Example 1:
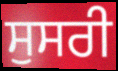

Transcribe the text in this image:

ਸੁਸਰੀ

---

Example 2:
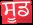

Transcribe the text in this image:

ਸੂਡ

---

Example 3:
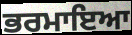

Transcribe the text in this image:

ਭਰਮਾਇਆ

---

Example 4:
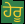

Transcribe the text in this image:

ਹੇਰੂ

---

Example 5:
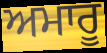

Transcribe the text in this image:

ਅਮਾਰੂ